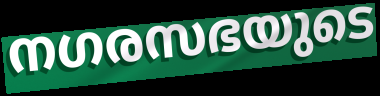
നഗരസഭയുടെ